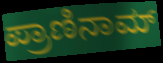
ಪ್ರಾಣಿನಾಮ್